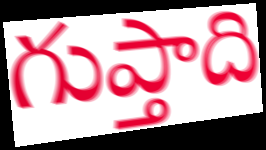
గుప్తాది